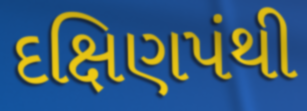
દક્ષિણપંથી